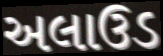
અલાઉડ